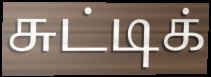
சுட்டிக்